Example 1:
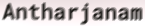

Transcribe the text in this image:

Antharjanam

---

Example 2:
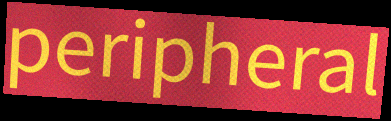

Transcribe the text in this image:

peripheral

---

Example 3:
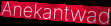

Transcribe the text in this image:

Anekantwad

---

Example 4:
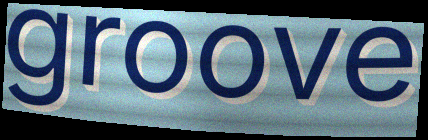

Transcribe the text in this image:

groove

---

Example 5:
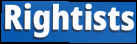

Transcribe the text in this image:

Rightists